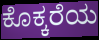
ಕೊಕ್ಕರೆಯ